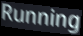
Running